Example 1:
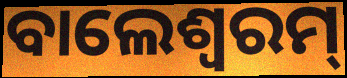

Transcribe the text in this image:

ବାଲେଶ୍ବରମ୍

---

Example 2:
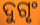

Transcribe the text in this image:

ଦୁଗୃଂ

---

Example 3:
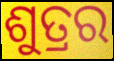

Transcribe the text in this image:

ଶୁତ୍ରର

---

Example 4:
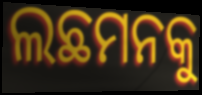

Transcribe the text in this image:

ଲଛମନକୁ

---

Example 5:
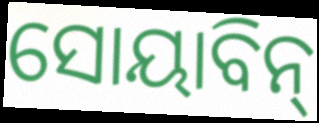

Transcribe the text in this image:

ସୋୟାବିନ୍